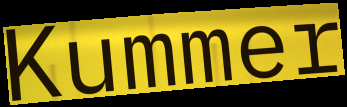
Kummer